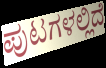
ಪುಟಗಳಲ್ಲಿದೆ